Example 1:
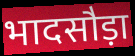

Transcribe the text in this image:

भादसौड़ा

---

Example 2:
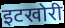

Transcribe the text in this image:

इटखोरी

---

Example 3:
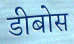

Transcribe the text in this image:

डीबोस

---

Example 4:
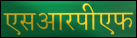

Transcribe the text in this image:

एसआरपीएफ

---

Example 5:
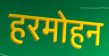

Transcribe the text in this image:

हरमोहन